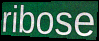
ribose